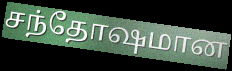
சந்தோஷமான